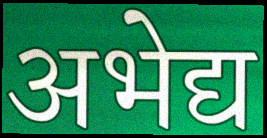
अभेद्य